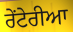
ਰੇਂਟੇਰੀਆ